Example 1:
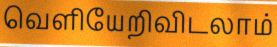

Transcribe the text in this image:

வெளியேறிவிடலாம்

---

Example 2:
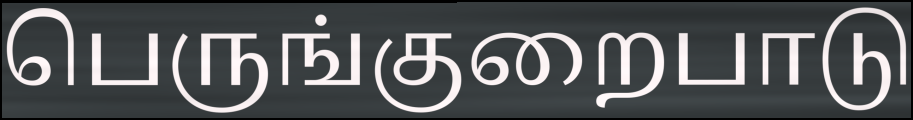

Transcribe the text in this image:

பெருங்குறைபாடு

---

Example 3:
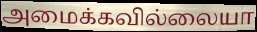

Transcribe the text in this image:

அமைக்கவில்லையா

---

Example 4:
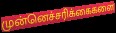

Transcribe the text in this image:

முன்னெச்சரிக்கைகளை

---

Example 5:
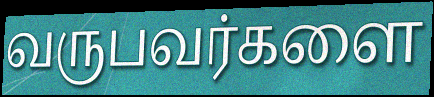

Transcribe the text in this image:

வருபவர்களை